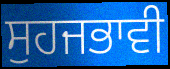
ਸੁਹਜਭਾਵੀ